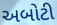
અબોટી